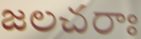
జలచరాః